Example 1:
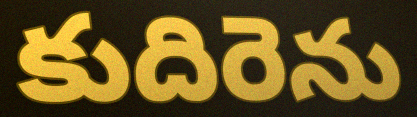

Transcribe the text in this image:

కుదిరెను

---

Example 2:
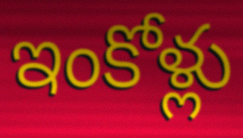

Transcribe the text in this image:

ఇంకోళ్లు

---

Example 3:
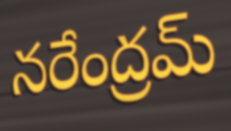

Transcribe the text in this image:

నరేంద్రమ్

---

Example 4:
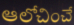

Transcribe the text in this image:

ఆలోచించే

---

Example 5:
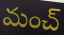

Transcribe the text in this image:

మంచ్